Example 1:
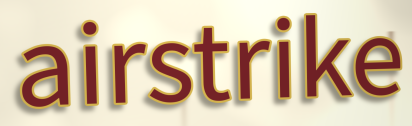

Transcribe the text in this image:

airstrike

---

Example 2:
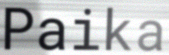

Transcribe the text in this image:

Paika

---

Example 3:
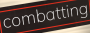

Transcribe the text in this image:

combatting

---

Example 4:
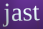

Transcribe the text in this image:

jast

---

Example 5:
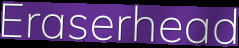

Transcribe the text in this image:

Eraserhead